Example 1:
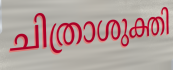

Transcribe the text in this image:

ചിത്രാശുക്തി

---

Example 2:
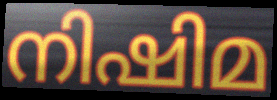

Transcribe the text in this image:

നിഷിമ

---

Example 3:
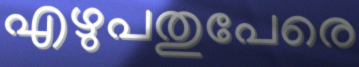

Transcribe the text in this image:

എഴുപതുപേരെ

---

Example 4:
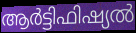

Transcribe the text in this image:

ആർട്ടിഫിഷ്യൽ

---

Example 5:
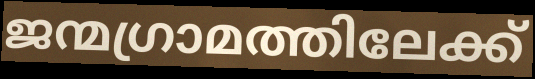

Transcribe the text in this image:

ജന്മഗ്രാമത്തിലേക്ക്